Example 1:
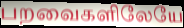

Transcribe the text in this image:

பறவைகளிலேயே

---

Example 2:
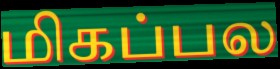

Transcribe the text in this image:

மிகப்பல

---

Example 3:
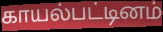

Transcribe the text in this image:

காயல்பட்டினம்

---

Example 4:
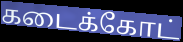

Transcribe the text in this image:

கடைக்கோட்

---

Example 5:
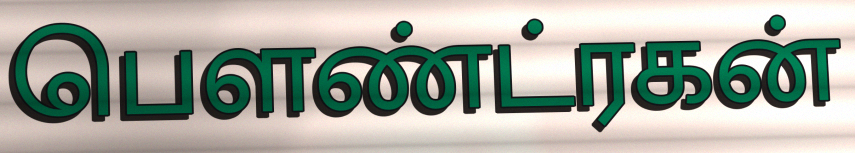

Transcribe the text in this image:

பௌண்ட்ரகன்